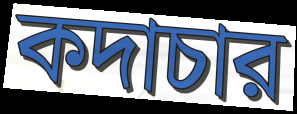
কদাচার